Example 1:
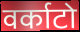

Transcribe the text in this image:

वर्काटो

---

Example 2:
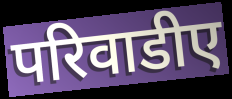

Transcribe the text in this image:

परिवाडीए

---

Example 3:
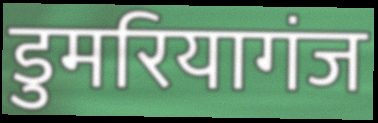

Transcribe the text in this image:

डुमरियागंज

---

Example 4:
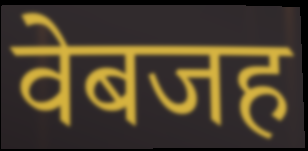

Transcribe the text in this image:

वेबजह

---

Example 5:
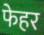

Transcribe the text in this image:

फेहर